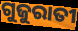
ଗୁଜୁରାତୀ